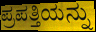
ಪ್ರಪತ್ತಿಯನ್ನು